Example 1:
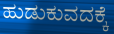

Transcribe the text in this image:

ಹುಡುಕುವದಕ್ಕೆ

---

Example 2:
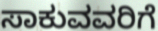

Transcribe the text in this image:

ಸಾಕುವವರಿಗೆ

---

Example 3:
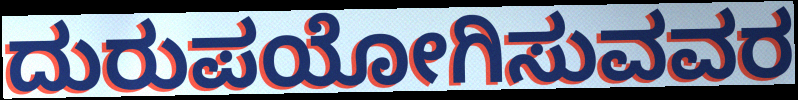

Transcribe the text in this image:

ದುರುಪಯೋಗಿಸುವವರ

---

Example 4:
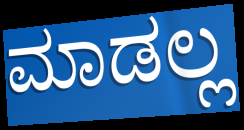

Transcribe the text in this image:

ಮಾಡಲ್ಲ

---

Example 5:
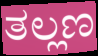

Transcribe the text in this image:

ತಲ್ಲಣ